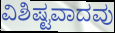
ವಿಶಿಷ್ಟವಾದವು